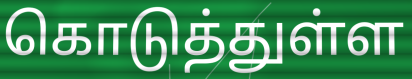
கொடுத்துள்ள